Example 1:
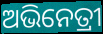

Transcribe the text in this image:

ଅଭିନେତ୍ରୀ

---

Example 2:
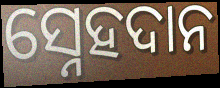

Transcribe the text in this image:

ସ୍ନେହଦାନ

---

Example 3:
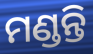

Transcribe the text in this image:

ମଣ୍ଡନ୍ତି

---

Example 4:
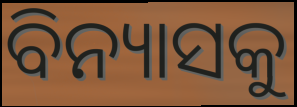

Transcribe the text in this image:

ବିନ୍ୟାସକୁ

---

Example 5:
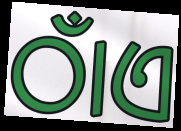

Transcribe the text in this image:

ଠାଁଏ